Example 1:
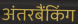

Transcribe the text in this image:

अंतरबैंकिंग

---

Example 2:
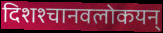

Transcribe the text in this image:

दिशश्चानवलोकयन्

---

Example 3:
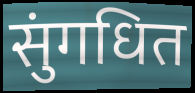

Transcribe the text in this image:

सुंगधित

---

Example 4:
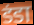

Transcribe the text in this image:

डंडा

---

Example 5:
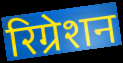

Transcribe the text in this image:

रिग्रेशन